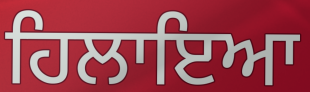
ਹਿਲਾਇਆ